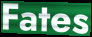
Fates